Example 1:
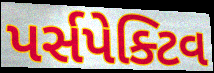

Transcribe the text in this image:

પર્સપેક્ટિવ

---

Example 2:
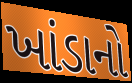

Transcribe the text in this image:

ખાંડાનો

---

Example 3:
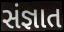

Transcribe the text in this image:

સંજ્ઞાત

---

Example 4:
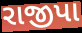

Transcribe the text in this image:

રાજીપા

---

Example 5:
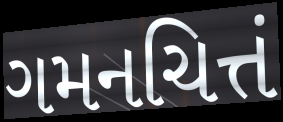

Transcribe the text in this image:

ગમનચિત્તં